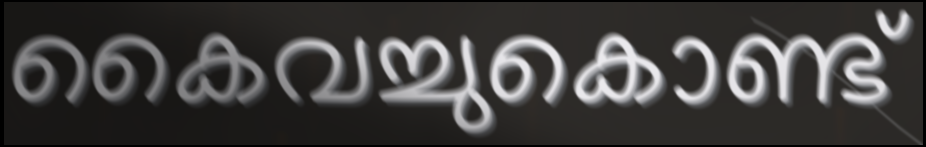
കൈവച്ചുകൊണ്ട്